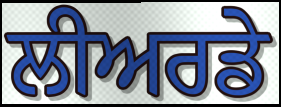
ਲੀਅਰਡੇ